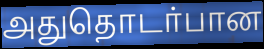
அதுதொடர்பான